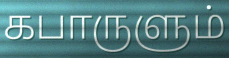
கபாருளும்